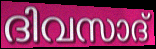
ദിവസാദ്